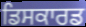
ਡਿਸਕਾਰਡ